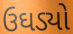
ઉઘડ્યો